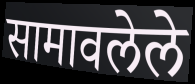
सामावलेले